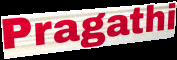
Pragathi